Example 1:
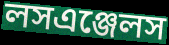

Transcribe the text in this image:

লসএঞ্জেলস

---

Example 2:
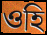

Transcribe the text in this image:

ওহি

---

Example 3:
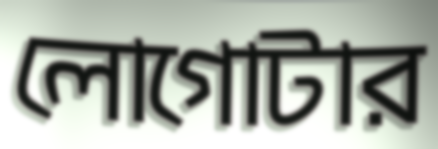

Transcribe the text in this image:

লোগোটার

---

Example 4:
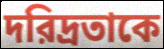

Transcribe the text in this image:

দরিদ্রতাকে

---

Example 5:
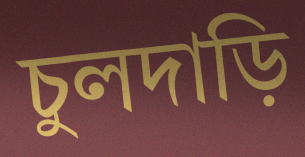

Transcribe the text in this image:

চুলদাড়ি